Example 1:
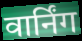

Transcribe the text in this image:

वार्निंग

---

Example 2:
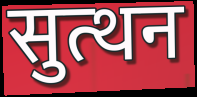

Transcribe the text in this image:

सुत्थन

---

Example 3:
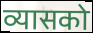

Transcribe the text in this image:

व्यासको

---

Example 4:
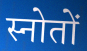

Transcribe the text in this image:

स्नोतों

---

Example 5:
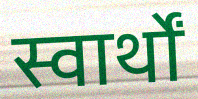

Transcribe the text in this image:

स्वार्थों